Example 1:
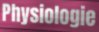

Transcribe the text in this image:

Physiologie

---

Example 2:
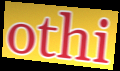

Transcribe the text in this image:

othi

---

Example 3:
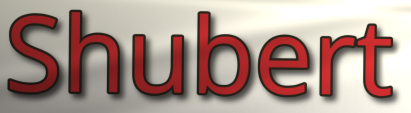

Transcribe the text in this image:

Shubert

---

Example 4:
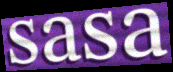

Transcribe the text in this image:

sasa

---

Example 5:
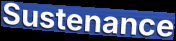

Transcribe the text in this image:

Sustenance